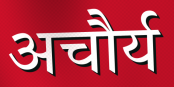
अचौर्य